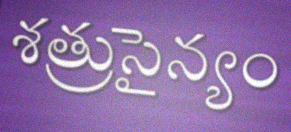
శత్రుసైన్యం